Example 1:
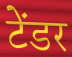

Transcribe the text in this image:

टेंडर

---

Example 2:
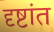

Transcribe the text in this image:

दृष्टांत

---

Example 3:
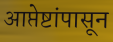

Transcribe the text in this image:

आप्तेष्टांपासून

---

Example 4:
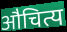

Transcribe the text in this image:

औचित्य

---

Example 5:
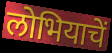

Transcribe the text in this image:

लोभियाचें